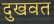
दुखवत